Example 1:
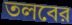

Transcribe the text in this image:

তলবের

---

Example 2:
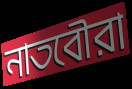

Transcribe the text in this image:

নাতবৌরা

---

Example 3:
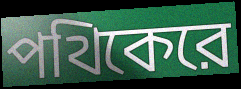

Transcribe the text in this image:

পথিকেরে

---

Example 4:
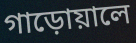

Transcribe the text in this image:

গাড়োয়ালে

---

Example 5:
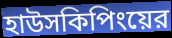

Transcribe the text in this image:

হাউসকিপিংয়ের